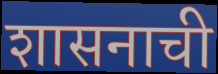
शासनाची